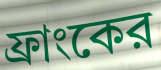
ফ্রাংকের